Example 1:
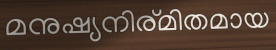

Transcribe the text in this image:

മനുഷ്യനിര്മിതമായ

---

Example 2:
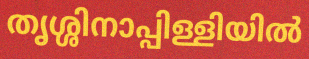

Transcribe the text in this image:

തൃശ്ശിനാപ്പിള്ളിയിൽ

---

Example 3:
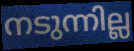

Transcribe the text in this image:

നടുന്നില്ല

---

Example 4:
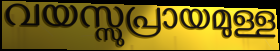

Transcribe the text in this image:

വയസ്സുപ്രായമുള്ള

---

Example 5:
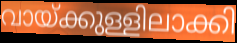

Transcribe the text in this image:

വായ്ക്കുള്ളിലാക്കി